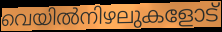
വെയിൽനിഴലുകളോട്